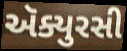
ઍક્યુરસી